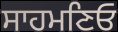
ਸਾਹਮਣਿਓ